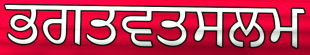
ਭਗਤਵਤਸਲਮ